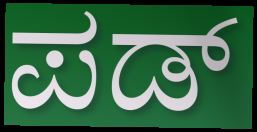
ಪಡ್